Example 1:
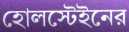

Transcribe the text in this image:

হোলস্টেইনের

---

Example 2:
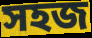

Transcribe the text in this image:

সহজ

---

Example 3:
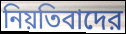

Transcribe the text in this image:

নিয়তিবাদের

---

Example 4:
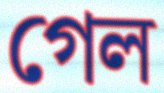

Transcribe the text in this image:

গেল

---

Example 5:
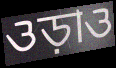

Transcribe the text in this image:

ওড়াও